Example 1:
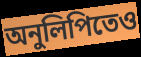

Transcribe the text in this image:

অনুলিপিতেও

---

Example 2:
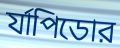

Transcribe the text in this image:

র্যাপিডোর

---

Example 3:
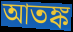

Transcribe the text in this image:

আতঙ্ক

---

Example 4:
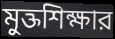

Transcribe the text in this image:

মুক্তশিক্ষার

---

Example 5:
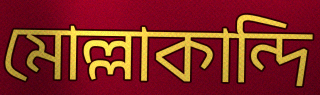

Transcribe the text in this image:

মোল্লাকান্দি